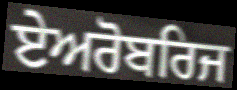
ਏਅਰੋਬਰਿਜ